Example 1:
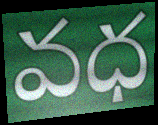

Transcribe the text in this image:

వధ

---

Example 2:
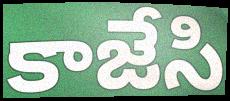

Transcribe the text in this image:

కాజేసి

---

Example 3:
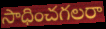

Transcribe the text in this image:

సాధించగలరా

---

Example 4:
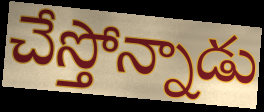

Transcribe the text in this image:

చేస్తోన్నాడు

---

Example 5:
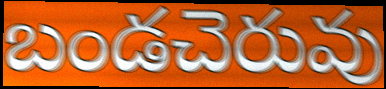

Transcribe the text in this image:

బండచెరువు